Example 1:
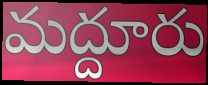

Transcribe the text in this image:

మద్దూరు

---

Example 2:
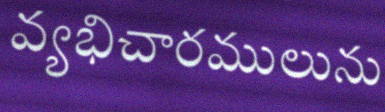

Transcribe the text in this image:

వ్యభిచారములును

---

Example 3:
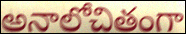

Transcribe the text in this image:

అనాలోచితంగా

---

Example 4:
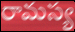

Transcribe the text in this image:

రామస్య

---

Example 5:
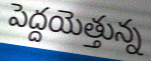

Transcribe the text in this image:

పెద్దయెత్తున్న